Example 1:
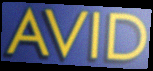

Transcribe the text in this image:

AVID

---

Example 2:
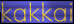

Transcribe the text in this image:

kakkai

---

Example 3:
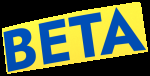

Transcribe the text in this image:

BETA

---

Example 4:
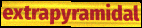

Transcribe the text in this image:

extrapyramidal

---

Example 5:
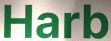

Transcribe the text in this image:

Harb